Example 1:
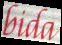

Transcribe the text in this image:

bida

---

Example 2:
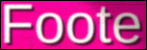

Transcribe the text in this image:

Foote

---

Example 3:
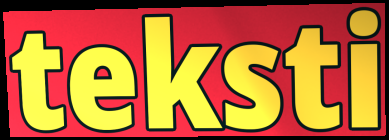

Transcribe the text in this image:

teksti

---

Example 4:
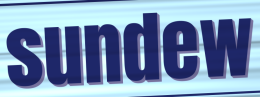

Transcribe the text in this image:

sundew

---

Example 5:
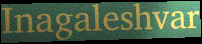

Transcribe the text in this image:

Inagaleshvar